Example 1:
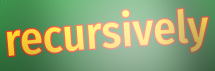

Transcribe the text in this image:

recursively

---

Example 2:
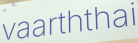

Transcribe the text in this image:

vaarththai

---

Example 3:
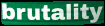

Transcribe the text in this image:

brutality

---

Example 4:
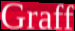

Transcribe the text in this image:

Graff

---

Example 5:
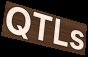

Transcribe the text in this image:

QTLs